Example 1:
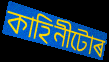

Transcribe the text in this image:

কাহিনীটোৰ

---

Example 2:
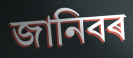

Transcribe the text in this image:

জানিবৰ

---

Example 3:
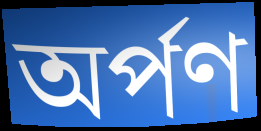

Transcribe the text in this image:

অৰ্পণ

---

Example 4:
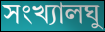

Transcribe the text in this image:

সংখ্যালঘু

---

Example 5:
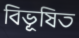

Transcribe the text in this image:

বিভূষিত